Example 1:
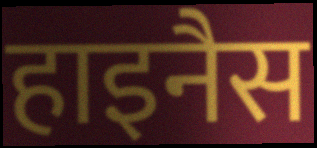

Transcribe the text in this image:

हाइनैस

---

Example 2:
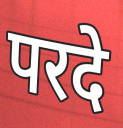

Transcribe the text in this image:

परदे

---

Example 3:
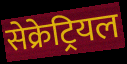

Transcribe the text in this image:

सेक्रेट्रियल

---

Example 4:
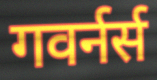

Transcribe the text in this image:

गवर्नर्स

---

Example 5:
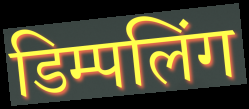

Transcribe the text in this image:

डिम्पलिंग